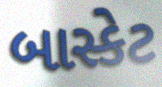
બાસ્કેટ